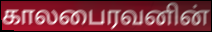
காலபைரவனின்